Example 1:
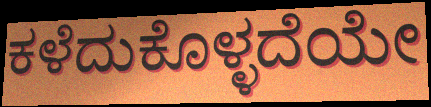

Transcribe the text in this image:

ಕಳೆದುಕೊಳ್ಳದೆಯೇ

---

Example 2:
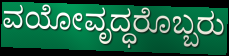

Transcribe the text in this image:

ವಯೋವೃದ್ಧರೊಬ್ಬರು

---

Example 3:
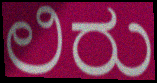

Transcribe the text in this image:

ಲಿರು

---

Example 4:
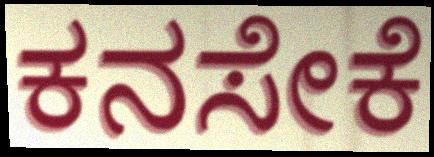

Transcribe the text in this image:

ಕನಸೇಕೆ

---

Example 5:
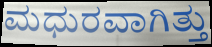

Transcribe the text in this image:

ಮಧುರವಾಗಿತ್ತು